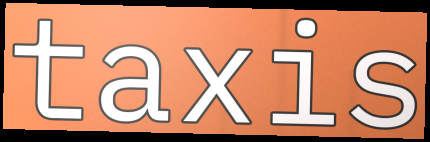
taxis